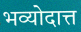
भव्योदात्त